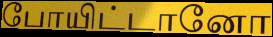
போயிட்டானோ